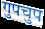
गुपचुप